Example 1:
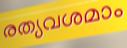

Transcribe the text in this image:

രത്യവശമാം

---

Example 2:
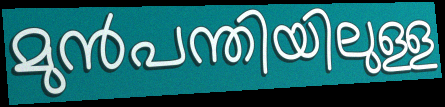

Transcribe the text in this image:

മുൻപന്തിയിലുള്ള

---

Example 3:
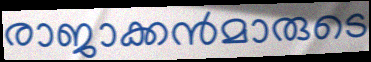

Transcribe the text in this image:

രാജാക്കൻമാരുടെ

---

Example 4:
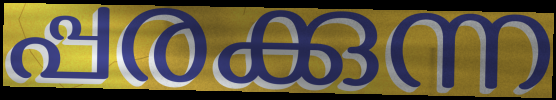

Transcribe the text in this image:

പ്പരക്കുന്ന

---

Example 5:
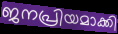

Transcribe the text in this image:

ജനപ്രിയമാക്കി